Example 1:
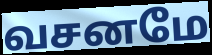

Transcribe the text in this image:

வசனமே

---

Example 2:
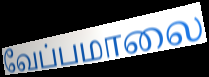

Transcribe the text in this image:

வேப்பமாலை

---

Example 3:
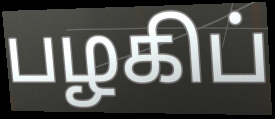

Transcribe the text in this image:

பழகிப்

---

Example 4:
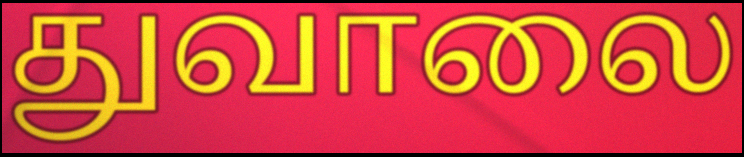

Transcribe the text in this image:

துவாலை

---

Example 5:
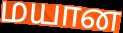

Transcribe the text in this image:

மயான